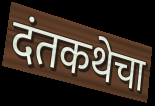
दंतकथेचा